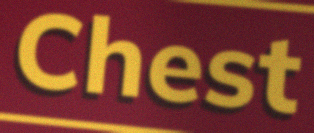
Chest